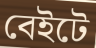
বেইটে